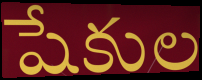
షేకుల